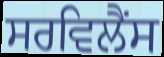
ਸਰਵਿਲੈਂਸ